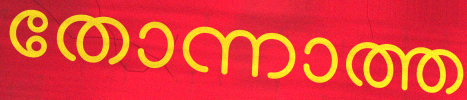
തോന്നാത്ത